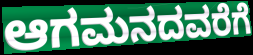
ಆಗಮನದವರೆಗೆ